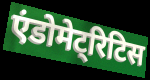
एंडोमेट्रिटिस